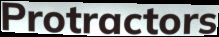
Protractors